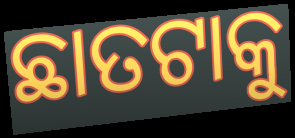
ଛାତଟାକୁ